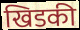
खिडकी